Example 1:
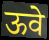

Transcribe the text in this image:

ऊवे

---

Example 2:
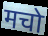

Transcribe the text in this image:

मचो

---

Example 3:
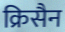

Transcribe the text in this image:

क्रिसैन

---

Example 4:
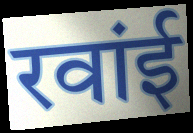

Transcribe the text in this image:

रवांई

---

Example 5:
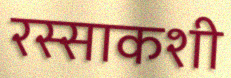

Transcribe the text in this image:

रस्साकशी